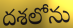
దశలోను